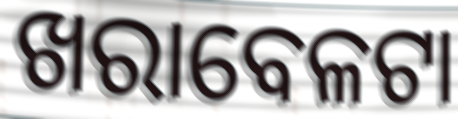
ଖରାବେଳଟା